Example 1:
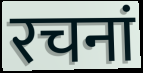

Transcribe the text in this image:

रचनां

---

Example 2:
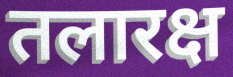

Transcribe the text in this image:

तलारक्ष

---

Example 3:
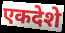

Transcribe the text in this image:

एकदेशे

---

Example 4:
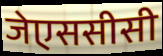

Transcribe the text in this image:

जेएससीसी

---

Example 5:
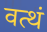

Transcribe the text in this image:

वत्थं